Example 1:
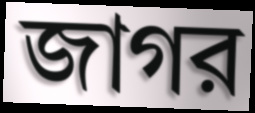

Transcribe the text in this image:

জাগর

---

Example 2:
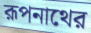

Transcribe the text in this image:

রূপনাথের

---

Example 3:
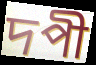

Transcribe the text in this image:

দপী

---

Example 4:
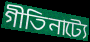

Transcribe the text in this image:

গীতিনাট্যে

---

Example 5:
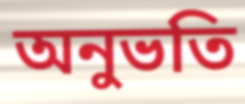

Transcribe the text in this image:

অনুভতি